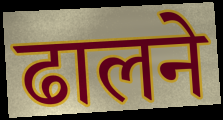
ढालने